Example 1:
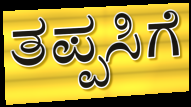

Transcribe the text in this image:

ತಪ್ಪಸಿಗೆ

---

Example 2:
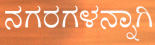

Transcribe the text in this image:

ನಗರಗಳನ್ನಾಗಿ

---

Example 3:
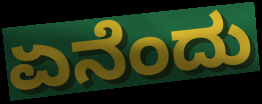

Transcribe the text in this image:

ಏನೆಂದು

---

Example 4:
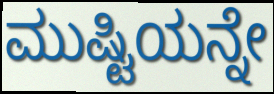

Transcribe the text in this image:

ಮುಷ್ಟಿಯನ್ನೇ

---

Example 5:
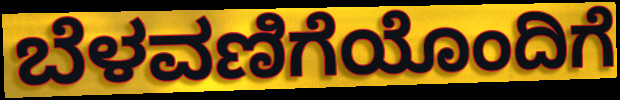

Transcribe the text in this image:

ಬೆಳವಣಿಗೆಯೊಂದಿಗೆ